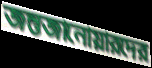
জন্তুজানোয়ারদের